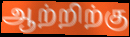
ஆற்றிற்கு